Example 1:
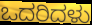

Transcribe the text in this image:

ಒದರಿದಳು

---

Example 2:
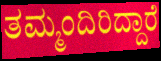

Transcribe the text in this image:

ತಮ್ಮಂದಿರಿದ್ದಾರೆ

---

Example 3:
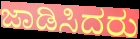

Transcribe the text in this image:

ಜಾಡಿಸಿದರು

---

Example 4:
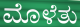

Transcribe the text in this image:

ಮೊಳೆತು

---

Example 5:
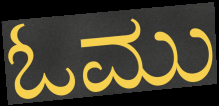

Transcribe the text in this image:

ಓಮು